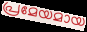
പ്രമേയമായ